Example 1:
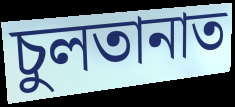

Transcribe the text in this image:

চুলতানাত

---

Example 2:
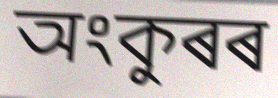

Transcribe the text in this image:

অংকুৰৰ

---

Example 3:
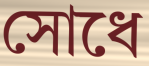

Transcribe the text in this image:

সোধে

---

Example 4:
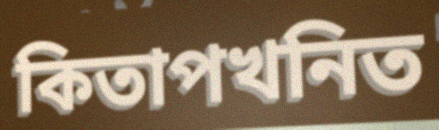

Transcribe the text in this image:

কিতাপখনিত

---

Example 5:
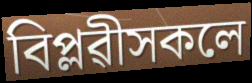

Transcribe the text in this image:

বিপ্লৱীসকলে